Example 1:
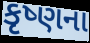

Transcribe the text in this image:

કૃષ્ણના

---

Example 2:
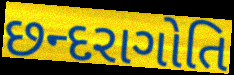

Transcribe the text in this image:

છન્દરાગોતિ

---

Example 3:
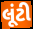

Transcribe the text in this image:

લૂંટી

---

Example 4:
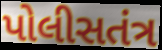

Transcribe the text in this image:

પોલીસતંત્ર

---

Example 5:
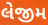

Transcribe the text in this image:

લેજીમ